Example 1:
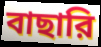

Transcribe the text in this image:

বাছারি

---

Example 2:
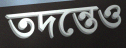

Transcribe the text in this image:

তদন্তেও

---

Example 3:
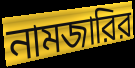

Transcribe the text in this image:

নামজারির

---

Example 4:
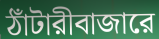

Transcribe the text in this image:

ঠাঁটারীবাজারে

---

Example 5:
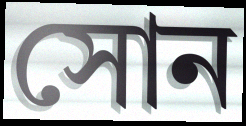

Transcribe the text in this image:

সোন